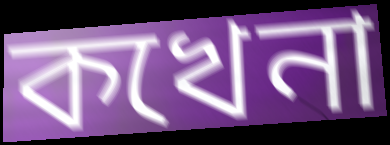
কখেনা